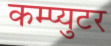
कम्प्युटर